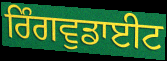
ਰਿੰਗਵੁਡਾਈਟ